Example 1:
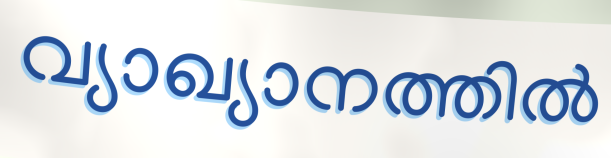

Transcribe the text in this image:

വ്യാഖ്യാനത്തിൽ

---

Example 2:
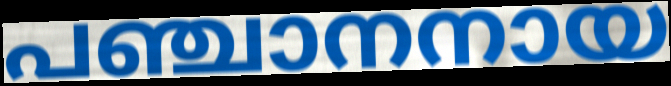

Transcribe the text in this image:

പഞ്ചാനനായ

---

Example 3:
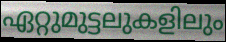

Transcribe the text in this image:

ഏറ്റുമുട്ടലുകളിലും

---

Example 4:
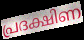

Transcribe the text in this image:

പ്രദക്ഷിണ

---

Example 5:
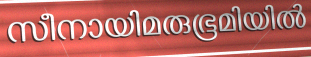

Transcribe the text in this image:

സീനായിമരുഭൂമിയിൽ